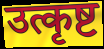
उत्कृष्ट